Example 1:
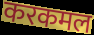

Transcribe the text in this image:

करकमल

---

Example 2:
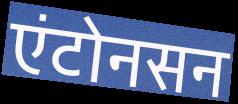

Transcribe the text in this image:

एंटोनसन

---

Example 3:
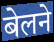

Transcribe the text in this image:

बेलने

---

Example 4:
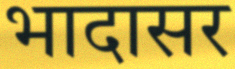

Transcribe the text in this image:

भादासर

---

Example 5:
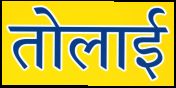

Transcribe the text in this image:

तोलाई